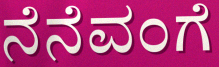
ನೆನೆವಂಗೆ